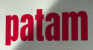
patam